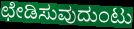
ಛೇಡಿಸುವುದುಂಟು